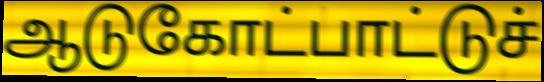
ஆடுகோட்பாட்டுச்